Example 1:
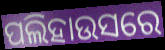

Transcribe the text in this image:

ପଲିହାଉସରେ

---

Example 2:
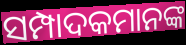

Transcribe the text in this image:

ସମ୍ପାଦକମାନଙ୍କ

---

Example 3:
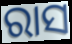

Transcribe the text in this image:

ରାସ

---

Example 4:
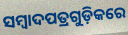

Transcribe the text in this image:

ସମ୍ୱାଦପତ୍ରଗୁଡ଼ିକରେ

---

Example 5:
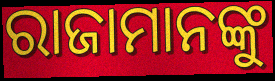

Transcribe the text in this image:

ରାଜାମାନଙ୍କୁ